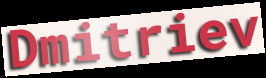
Dmitriev